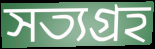
সত্যগ্ৰহ